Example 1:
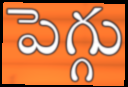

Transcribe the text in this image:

పెగ్గు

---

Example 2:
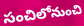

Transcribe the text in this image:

సంచిలోనుంచి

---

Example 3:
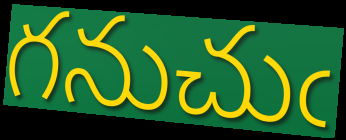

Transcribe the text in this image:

గనుచుఁ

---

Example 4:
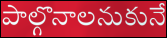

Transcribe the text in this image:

పాల్గొనాలనుకునే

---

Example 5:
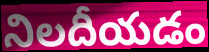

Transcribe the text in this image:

నిలదీయడం